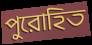
পুরোহিত